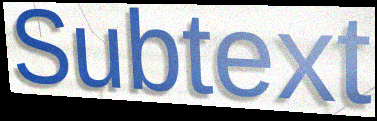
Subtext